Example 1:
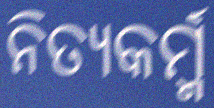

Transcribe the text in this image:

ନିତ୍ୟକର୍ମ୍ମ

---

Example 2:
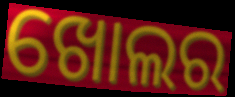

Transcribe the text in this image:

ଖୋଲର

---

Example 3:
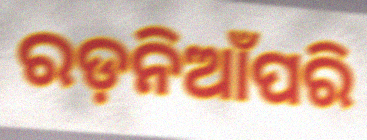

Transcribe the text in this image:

ରଡ଼ନିଆଁପରି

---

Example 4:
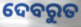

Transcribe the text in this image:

ଦେବରୁତ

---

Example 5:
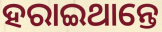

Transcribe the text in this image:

ହରାଇଥାନ୍ତେ